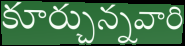
కూర్చున్నవారి